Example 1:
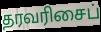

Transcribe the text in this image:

தரவரிசைப்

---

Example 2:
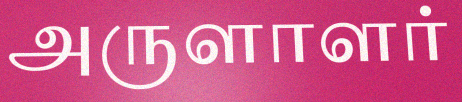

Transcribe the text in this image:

அருளாளர்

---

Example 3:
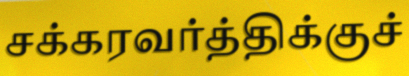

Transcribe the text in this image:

சக்கரவர்த்திக்குச்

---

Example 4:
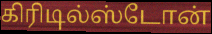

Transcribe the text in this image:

கிரிடில்ஸ்டோன்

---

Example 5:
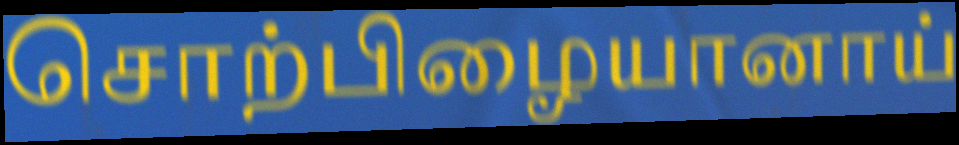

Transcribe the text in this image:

சொற்பிழையானாய்